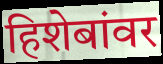
हिशेबांवर